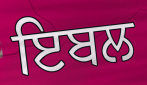
ਇਬਲ